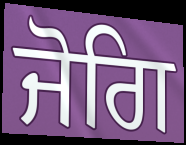
ਜੋਗਿ